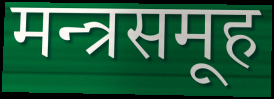
मन्त्रसमूह